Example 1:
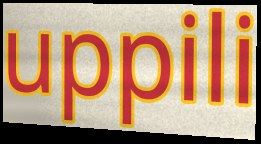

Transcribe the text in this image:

uppili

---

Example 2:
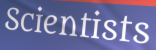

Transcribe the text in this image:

Scientists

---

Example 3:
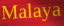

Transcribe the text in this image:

Malaya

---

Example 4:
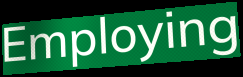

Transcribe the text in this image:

Employing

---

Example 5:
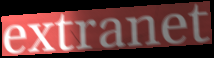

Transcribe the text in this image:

extranet